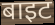
बाइट